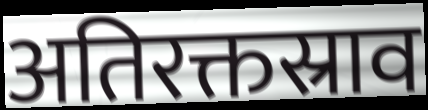
अतिरक्तस्राव